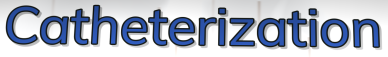
Catheterization